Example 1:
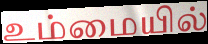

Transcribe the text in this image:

உம்மையில்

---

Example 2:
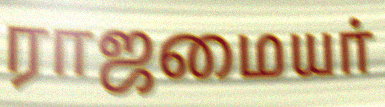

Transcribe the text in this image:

ராஜமையர்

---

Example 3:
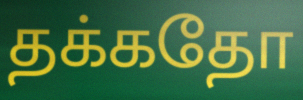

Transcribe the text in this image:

தக்கதோ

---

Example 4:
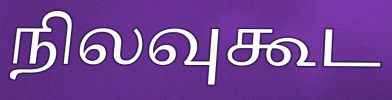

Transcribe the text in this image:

நிலவுகூட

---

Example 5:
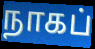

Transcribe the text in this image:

நாகப்